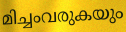
മിച്ചംവരുകയും